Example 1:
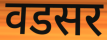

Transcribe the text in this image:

वडसर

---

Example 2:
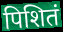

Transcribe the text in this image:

पिशितं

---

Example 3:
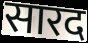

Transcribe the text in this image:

सारद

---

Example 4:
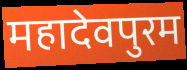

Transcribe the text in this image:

महादेवपुरम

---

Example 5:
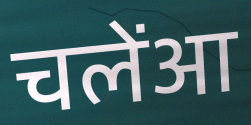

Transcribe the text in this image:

चलेंआ